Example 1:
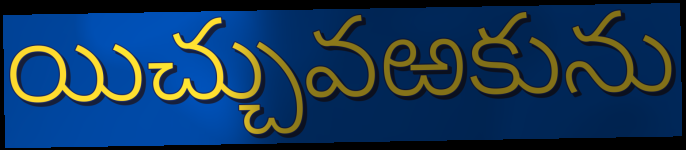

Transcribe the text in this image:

యిచ్చువఱకును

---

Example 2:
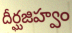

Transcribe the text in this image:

దీర్ఘజిహ్వం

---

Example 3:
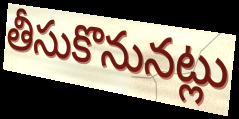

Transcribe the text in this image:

తీసుకొనునట్లు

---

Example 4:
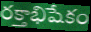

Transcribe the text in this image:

రక్తాభిషేకం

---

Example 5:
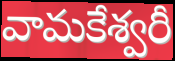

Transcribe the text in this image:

వామకేశ్వరీ